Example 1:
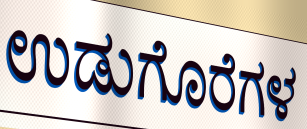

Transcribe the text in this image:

ಉಡುಗೊರೆಗಳ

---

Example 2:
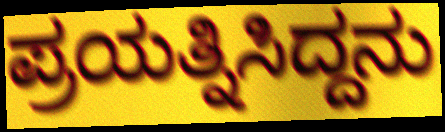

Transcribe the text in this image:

ಪ್ರಯತ್ನಿಸಿದ್ದನು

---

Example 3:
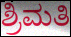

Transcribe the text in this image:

ಶ್ರಿಮತಿ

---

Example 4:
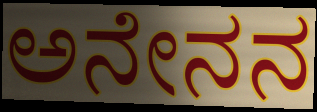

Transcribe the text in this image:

ಅನೇನನ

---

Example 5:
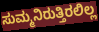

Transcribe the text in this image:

ಸುಮ್ಮನಿರುತ್ತಿರಲಿಲ್ಲ